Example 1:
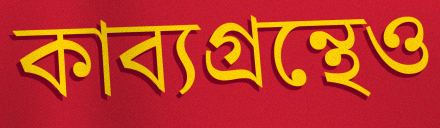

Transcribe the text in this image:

কাব্যগ্রন্থেও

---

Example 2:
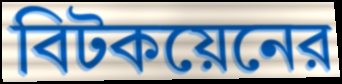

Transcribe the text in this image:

বিটকয়েনের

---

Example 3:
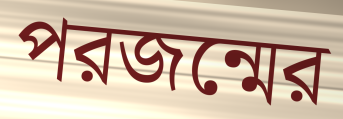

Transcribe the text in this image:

পরজন্মের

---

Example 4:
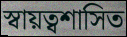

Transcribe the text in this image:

স্বায়ত্বশাসিত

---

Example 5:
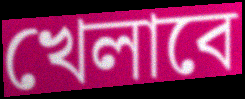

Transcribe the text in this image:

খেলাবে